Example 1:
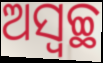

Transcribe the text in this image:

ଅସ୍ଵଚ୍ଛ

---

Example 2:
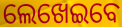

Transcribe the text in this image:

ଲେଖେଇବେ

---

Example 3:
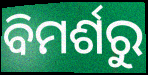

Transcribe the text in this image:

ବିମର୍ଶରୁ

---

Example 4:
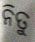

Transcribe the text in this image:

ନିତୁ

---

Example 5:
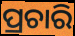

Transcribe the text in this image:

ପ୍ରଚାରି